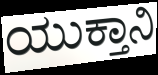
ಯುಕ್ತಾನಿ